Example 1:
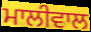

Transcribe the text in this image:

ਮਾਲੀਵਾਲ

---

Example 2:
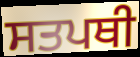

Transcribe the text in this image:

ਸਤਪਥੀ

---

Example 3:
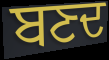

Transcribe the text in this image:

ਬਣਦ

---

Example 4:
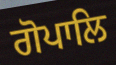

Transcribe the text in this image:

ਗੋਪਾਲਿ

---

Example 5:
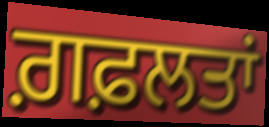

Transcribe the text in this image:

ਗ਼ਫ਼ਲਤਾਂ